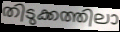
തിടുക്കത്തിലാ